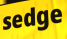
sedge